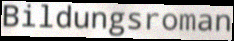
Bildungsroman